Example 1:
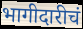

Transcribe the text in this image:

भागीदारीचं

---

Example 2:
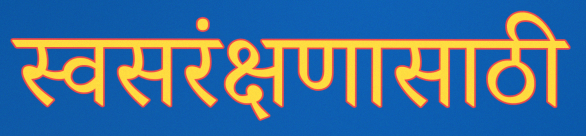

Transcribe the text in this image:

स्वसरंक्षणासाठी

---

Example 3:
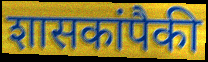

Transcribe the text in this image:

शासकांपैकी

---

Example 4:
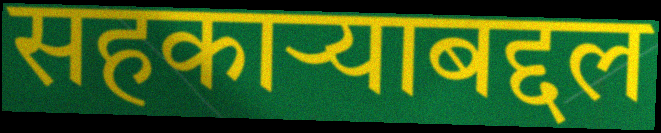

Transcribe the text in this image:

सहकाऱ्याबद्दल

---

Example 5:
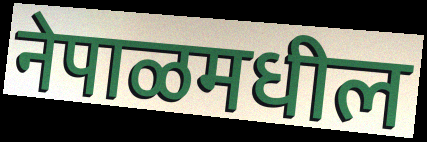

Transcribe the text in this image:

नेपाळमधील